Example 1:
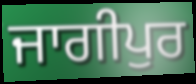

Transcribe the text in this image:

ਜਾਗੀਪੁਰ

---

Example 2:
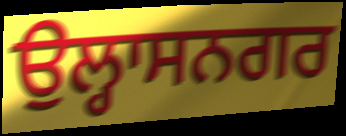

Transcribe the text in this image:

ਉਲ੍ਹਾਸਨਗਰ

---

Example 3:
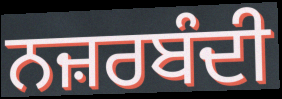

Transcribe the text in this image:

ਨਜ਼ਰਬੰਦੀ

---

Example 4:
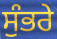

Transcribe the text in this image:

ਸੁੰਭਰੇ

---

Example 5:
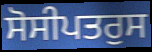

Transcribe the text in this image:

ਸੋਸੀਪਤਰੁਸ